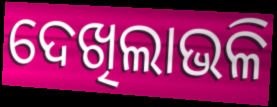
ଦେଖିଲାଭଳି